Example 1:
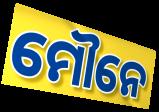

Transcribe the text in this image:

ମୌନେ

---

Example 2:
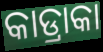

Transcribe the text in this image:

କାଡ୍ରାକା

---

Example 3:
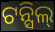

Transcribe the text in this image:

ଟନ୍ସିଲ୍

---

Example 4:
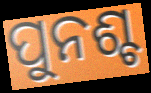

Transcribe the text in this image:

ପୁନଶ୍ଚ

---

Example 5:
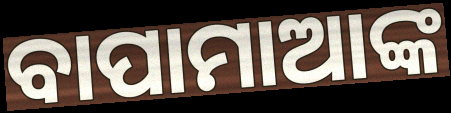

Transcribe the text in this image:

ବାପାମାଆଙ୍କ